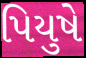
પિયુષે